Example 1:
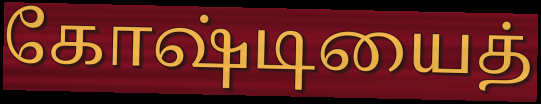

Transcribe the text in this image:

கோஷ்டியைத்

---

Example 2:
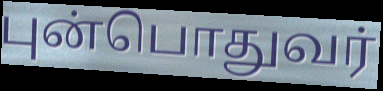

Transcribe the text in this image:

புன்பொதுவர்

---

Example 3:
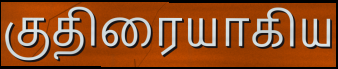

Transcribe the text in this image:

குதிரையாகிய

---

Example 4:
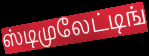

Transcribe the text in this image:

ஸ்டிமுலேட்டிங்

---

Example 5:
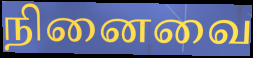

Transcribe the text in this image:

நினைவை